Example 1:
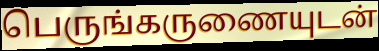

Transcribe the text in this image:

பெருங்கருணையுடன்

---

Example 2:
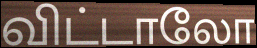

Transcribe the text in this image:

விட்டாலோ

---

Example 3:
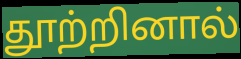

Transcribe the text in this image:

தூற்றினால்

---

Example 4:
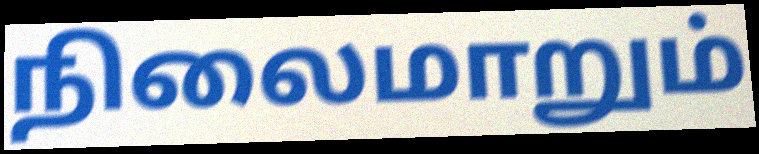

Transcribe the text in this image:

நிலைமாறும்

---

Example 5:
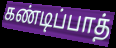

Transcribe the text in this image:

கண்டிப்பாத்